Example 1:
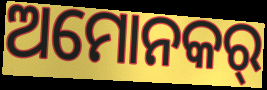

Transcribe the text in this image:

ଅମୋନକର୍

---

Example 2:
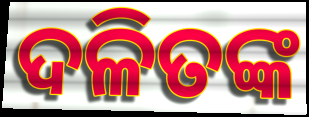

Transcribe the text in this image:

ଦଳିତଙ୍କ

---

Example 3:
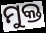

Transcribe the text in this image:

ମୁକ୍ତ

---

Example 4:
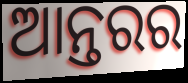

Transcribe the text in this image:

ଆନ୍ତରର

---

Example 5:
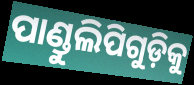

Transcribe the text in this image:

ପାଣ୍ଡୁଲିପିଗୁଡ଼ିକୁ